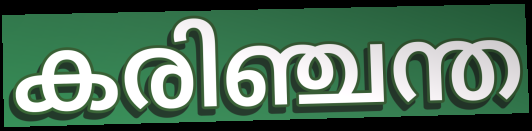
കരിഞ്ചന്ത